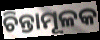
ଚିନ୍ତାମୂଳକ